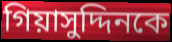
গিয়াসুদ্দিনকে